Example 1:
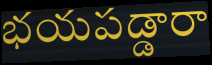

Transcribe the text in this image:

భయపడ్డారా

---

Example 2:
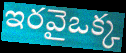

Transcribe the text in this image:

ఇరవైఒక్క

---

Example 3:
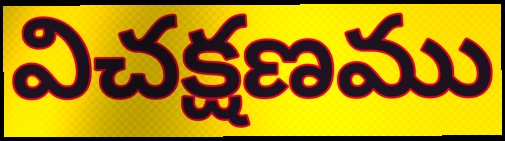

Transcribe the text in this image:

విచక్షణము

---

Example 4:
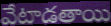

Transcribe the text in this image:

వేటాడతాయి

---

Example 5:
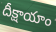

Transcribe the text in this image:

దీక్షాయాం